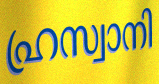
ഹ്രസ്വാനി